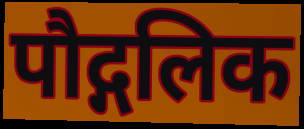
पौद्गलिक